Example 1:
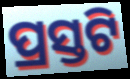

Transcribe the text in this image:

ପ୍ରସ୍ତଟି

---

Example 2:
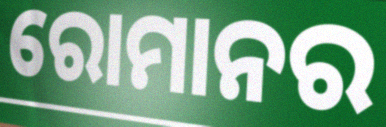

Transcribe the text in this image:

ରୋମାନର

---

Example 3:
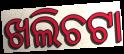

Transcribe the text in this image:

ଖଲିଚଟା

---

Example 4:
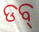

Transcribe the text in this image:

ଡବ୍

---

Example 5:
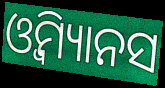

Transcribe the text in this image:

ଓ୍ବିମ୍ୟାନସ